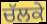
ਚੱਲਕੇ